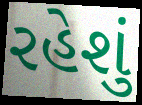
રહેશું